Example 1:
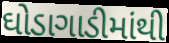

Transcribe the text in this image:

ઘોડાગાડીમાંથી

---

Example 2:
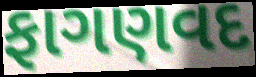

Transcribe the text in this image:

ફાગણવદ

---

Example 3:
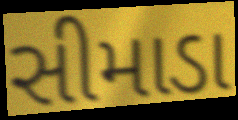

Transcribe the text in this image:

સીમાડા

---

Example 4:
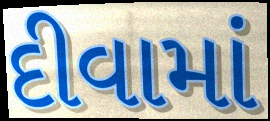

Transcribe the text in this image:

દીવામાં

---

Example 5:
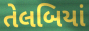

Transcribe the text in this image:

તેલબિયાં